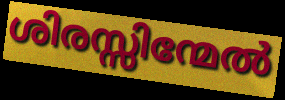
ശിരസ്സിന്മേൽ